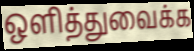
ஒளித்துவைக்க